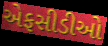
એફસીડીઓ